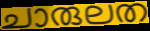
ചാരുലത